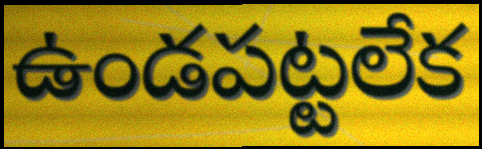
ఉండపట్టలేక